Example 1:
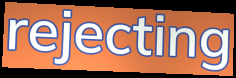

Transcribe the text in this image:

rejecting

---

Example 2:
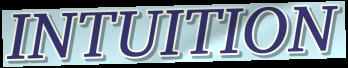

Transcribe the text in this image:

INTUITION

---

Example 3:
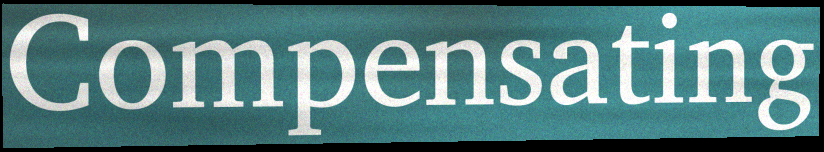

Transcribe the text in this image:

Compensating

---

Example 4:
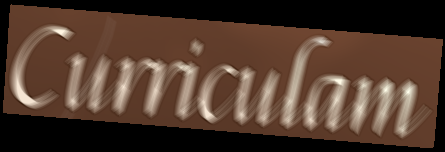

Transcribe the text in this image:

Curriculam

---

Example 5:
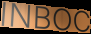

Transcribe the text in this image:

INBOC